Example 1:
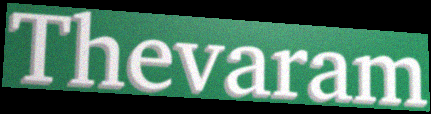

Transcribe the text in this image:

Thevaram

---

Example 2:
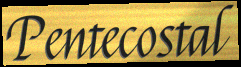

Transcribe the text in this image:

Pentecostal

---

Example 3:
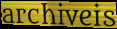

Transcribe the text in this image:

archiveis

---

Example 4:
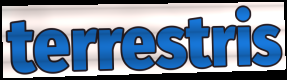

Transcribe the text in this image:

terrestris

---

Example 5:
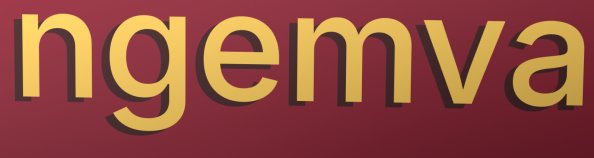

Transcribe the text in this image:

ngemva